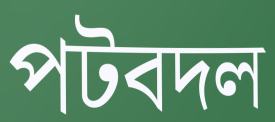
পটবদল